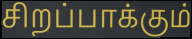
சிறப்பாக்கும்